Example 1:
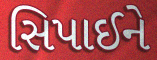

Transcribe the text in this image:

સિપાઈને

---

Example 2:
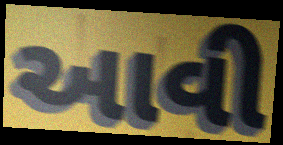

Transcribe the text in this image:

આવી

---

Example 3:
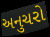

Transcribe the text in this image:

અનુચરો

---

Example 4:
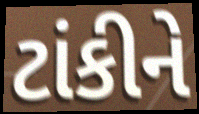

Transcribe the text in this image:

ટાંકીને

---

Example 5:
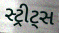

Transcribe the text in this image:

સ્ટ્રીટ્સ